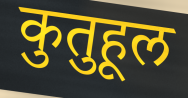
कुतुहूल